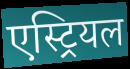
एस्ट्रियल